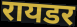
रायडर